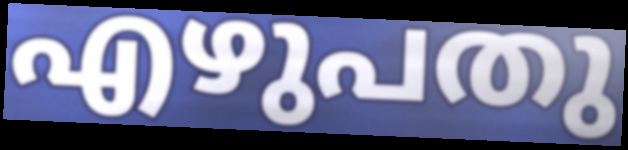
എഴുപതു